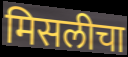
मिसलीचा